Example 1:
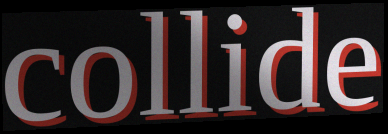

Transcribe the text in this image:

collide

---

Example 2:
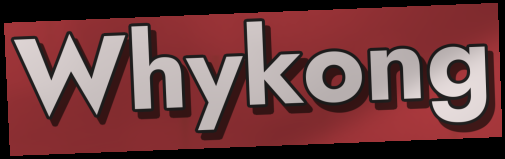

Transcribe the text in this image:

Whykong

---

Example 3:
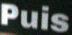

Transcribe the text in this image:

Puis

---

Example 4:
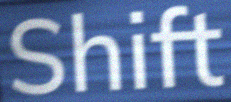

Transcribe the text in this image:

Shift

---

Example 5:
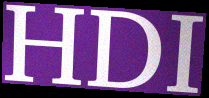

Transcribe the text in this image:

HDI